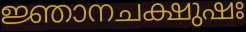
ജ്ഞാനചക്ഷുഷഃ